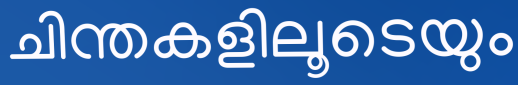
ചിന്തകളിലൂടെയും